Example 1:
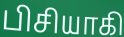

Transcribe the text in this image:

பிசியாகி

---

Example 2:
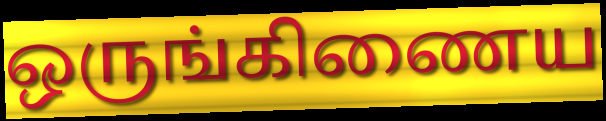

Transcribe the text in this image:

ஒருங்கிணைய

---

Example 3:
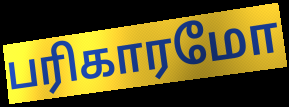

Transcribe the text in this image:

பரிகாரமோ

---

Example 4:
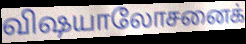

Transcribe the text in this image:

விஷயாலோசனைக்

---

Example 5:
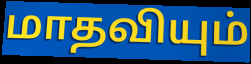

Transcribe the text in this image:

மாதவியும்